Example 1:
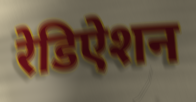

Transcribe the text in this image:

रेडिऐशन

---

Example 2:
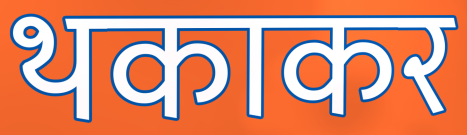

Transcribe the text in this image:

थकाकर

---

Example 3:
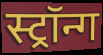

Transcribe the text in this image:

स्ट्रॉन्ग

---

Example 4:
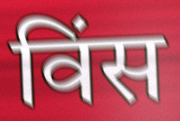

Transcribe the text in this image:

विंस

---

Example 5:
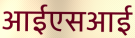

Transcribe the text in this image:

आईएसआई